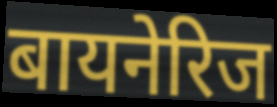
बायनेरिज